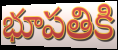
భూపతికి